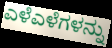
ಎಳೆಎಳೆಗಳನ್ನು